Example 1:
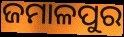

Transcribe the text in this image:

ଜମାଳପୁର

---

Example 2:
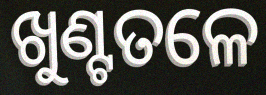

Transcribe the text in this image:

ଖୁଣ୍ଟତଳେ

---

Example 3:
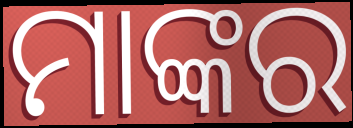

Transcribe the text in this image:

ମାଙ୍କର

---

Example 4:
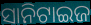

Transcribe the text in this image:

ସାନିଟାଇଜ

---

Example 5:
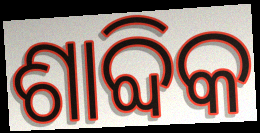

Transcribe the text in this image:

ଶାବ୍ଦିକ